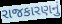
રાજકારણનું